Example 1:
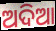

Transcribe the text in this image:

ଅଦିଆ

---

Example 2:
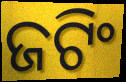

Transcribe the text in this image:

ଜଟିଂ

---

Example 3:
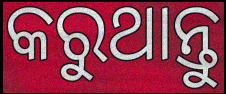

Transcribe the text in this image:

କରୁଥାନ୍ତୁ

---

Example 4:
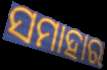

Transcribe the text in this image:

ସମାହାର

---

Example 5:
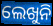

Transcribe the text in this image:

ଲେଖୁନି